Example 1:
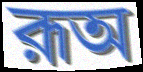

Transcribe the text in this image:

রূঅ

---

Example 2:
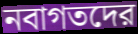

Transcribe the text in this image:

নবাগতদের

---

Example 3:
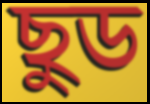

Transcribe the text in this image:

ছুড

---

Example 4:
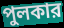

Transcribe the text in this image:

পুলকার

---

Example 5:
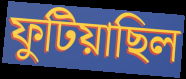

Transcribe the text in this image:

ফুটিয়াছিল